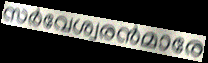
സർവേശ്വരൻമാരേ